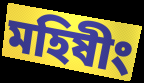
মহিষীং